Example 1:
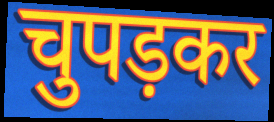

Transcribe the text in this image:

चुपड़कर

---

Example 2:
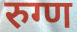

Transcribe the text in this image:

रुग्ण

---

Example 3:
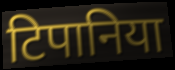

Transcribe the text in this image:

टिपानिया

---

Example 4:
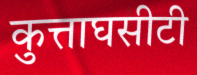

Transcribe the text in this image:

कुत्ताघसीटी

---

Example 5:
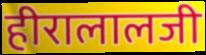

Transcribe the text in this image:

हीरालालजी